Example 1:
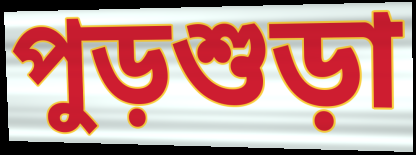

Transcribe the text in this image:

পুড়শুড়া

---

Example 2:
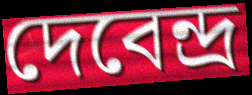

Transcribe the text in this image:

দেবেন্দ্র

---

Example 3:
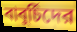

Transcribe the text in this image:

বাবুর্চিদের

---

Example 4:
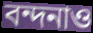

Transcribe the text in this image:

বন্দনাও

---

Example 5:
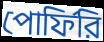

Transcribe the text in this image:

পোর্ফিরি